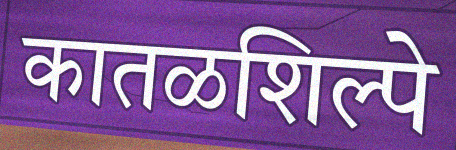
कातळशिल्पे